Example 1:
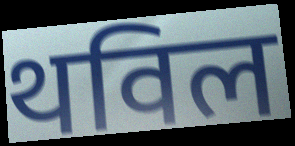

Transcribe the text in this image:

थविल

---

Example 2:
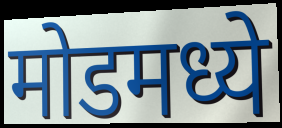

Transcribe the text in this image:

मोडमध्ये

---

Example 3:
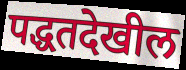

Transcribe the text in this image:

पद्धतदेखील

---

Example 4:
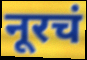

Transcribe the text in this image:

नूरचं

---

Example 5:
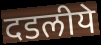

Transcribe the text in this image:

दडलीये